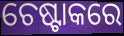
ଚେଷ୍ଟାକରେ